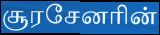
சூரசேனரின்